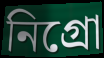
নিগ্ৰো